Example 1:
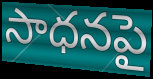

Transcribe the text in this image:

సాధనపై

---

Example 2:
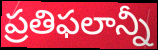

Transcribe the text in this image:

ప్రతిఫలాన్నీ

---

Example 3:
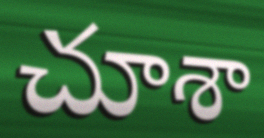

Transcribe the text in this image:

చూశా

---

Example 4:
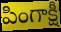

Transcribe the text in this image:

పింగాక్షీ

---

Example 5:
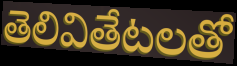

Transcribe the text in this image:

తెలివితేటలతో